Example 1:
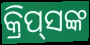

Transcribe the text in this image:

କ୍ରିପ୍‌ସଙ୍କ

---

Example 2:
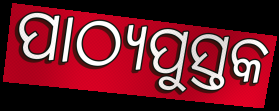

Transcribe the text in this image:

ପାଠ୍ୟପୁସ୍ତକ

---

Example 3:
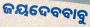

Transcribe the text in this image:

ଜୟଦେବବାବୁ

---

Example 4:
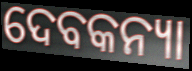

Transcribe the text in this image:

ଦେବକନ୍ୟା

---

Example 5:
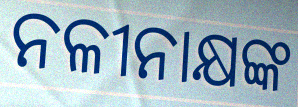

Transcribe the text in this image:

ନଳୀନାକ୍ଷଙ୍କ